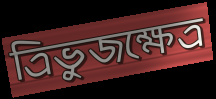
ত্রিভুজক্ষেত্র